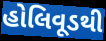
હોલિવૂડથી